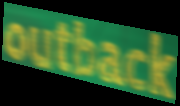
outback